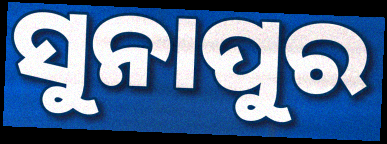
ସୁନାପୁର